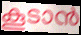
കൂടാൻ